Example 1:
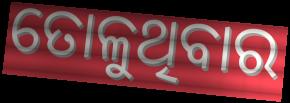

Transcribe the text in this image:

ତୋଳୁଥିବାର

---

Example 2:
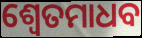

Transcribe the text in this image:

ଶ୍ୱେତମାଧବ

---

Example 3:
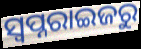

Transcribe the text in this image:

ସ୍ୱପ୍ନରାଇଜରୁ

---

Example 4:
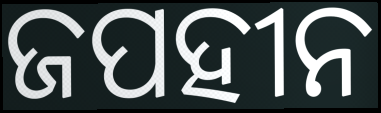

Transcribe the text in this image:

ଜପହୀନ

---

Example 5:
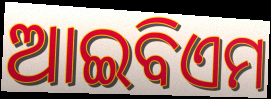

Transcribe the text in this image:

ଆଇବିଏମ